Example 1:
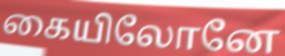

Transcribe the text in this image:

கையிலோனே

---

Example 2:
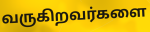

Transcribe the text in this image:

வருகிறவர்களை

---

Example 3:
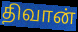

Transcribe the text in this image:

திவான்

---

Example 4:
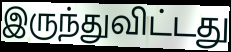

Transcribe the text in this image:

இருந்துவிட்டது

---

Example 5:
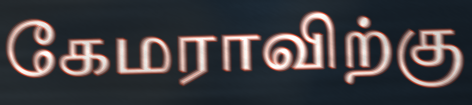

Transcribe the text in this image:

கேமராவிற்கு